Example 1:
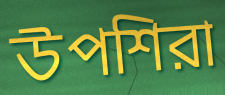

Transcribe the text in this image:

উপশিরা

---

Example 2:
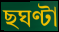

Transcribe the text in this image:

ছঘণ্টা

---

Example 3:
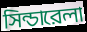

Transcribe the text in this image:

সিন্ডারেলা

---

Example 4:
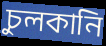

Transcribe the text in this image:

চুলকানি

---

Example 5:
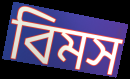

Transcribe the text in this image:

বিমস